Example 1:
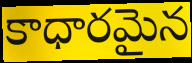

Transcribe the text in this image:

కాధారమైన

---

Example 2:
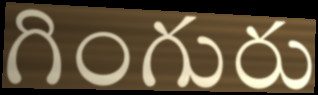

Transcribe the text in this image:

గింగురు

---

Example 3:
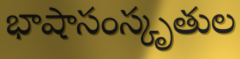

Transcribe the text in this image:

భాషాసంస్కృతుల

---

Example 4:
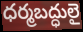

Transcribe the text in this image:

ధర్మబద్ధులై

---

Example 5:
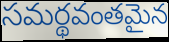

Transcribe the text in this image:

సమర్థవంతమైన